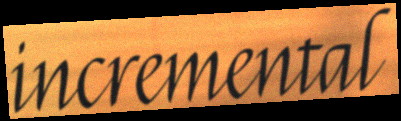
incremental